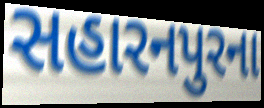
સહારનપુરના